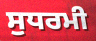
ਸੁਧਰਮੀ